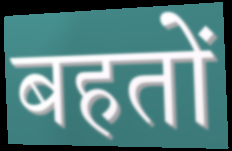
बहतों